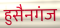
हुसैनगंज